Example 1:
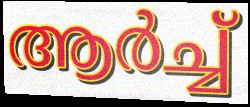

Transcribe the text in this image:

ആർച്ച്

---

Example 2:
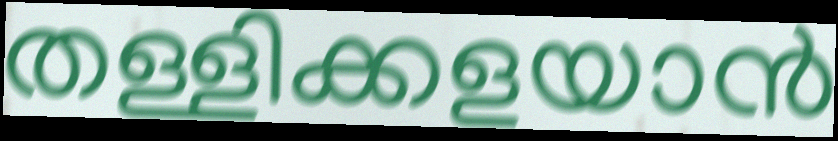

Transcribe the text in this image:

തള്ളിക്കളയാൻ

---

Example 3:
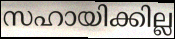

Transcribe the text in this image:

സഹായിക്കില്ല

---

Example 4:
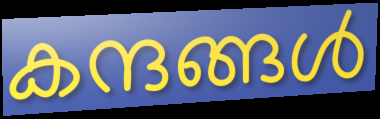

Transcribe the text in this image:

കന്ദങ്ങൾ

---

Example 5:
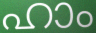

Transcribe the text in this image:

ഹാം